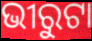
ଭୀରୁଟା